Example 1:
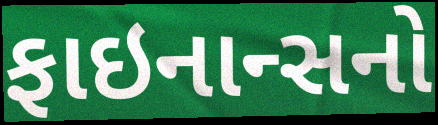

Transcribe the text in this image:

ફાઇનાન્સનો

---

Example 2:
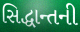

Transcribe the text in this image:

સિદ્ધાન્તની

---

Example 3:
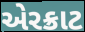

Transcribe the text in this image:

એરક્રાટ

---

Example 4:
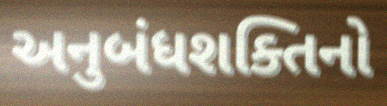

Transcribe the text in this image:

અનુબંધશક્તિનો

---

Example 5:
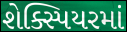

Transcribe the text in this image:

શેક્સ્પિયરમાં